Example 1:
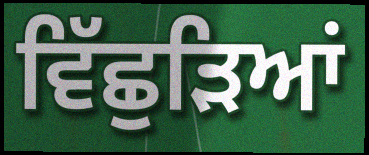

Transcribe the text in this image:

ਵਿੱਛੁੜਿਆਂ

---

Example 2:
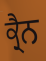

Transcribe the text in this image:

ਕ੍ਰੈਨ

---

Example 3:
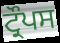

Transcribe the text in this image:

ਟ੍ਰੌਪਸ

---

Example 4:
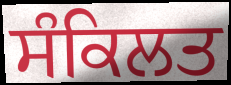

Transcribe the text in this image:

ਸੰਕਿਲਤ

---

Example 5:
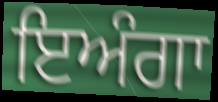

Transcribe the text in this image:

ਇਅੰਗਾ